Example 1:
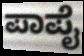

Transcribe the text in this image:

ಪಾಪೈ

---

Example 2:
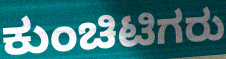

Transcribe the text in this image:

ಕುಂಚಿಟಿಗರು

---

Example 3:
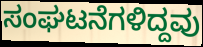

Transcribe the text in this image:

ಸಂಘಟನೆಗಳಿದ್ದವು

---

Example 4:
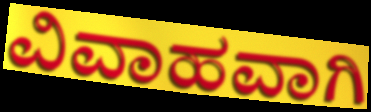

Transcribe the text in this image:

ವಿವಾಹವಾಗಿ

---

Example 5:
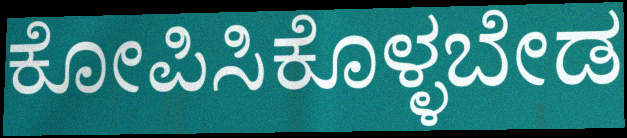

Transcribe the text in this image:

ಕೋಪಿಸಿಕೊಳ್ಳಬೇಡ